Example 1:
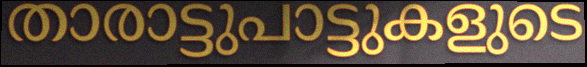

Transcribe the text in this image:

താരാട്ടുപാട്ടുകളുടെ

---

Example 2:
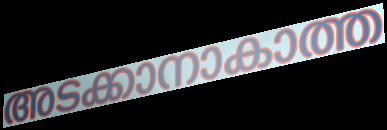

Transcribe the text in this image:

അടക്കാനാകാത്ത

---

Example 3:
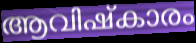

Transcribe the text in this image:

ആവിഷ്‌കാരം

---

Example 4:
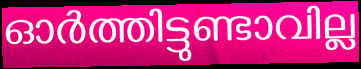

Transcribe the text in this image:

ഓർത്തിട്ടുണ്ടാവില്ല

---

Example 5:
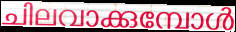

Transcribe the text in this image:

ചിലവാക്കുമ്പോൾ